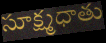
సూక్ష్మధాతు